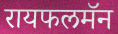
रायफलमॅन